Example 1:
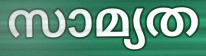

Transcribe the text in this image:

സാമ്യത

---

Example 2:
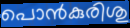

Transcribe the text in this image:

പൊൻകുരിശു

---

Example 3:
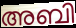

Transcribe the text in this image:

അബി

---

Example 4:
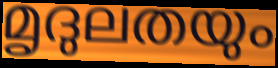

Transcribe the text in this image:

മൃദുലതയും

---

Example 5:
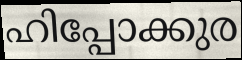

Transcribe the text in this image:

ഹിപ്പോക്കുര